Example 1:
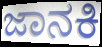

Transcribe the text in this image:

ಜಾನಕಿ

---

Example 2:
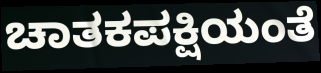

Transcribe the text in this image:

ಚಾತಕಪಕ್ಷಿಯಂತೆ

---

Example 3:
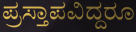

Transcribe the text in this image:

ಪ್ರಸ್ತಾಪವಿದ್ದರೂ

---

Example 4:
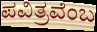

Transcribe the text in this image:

ಪವಿತ್ರವೆಂಬ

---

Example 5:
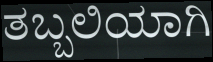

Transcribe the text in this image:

ತಬ್ಬಲಿಯಾಗಿ